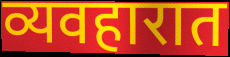
व्यवहारात